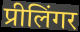
प्रीलिंगर